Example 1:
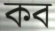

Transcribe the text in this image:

কব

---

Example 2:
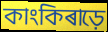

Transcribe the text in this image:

কাংকিৰাড়ে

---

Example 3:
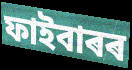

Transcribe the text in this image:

ফাইবাৰৰ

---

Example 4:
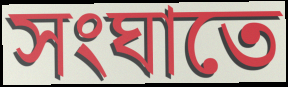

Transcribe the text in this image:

সংঘাতে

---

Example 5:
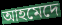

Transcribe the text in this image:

আহমেদে